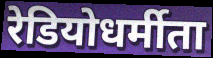
रेडियोधर्मीता